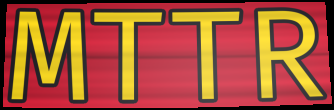
MTTR